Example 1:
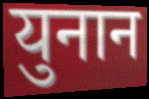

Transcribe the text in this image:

युनान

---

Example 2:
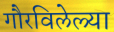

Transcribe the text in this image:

गौरविलेल्या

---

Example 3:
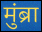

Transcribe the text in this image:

मुंब्रा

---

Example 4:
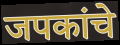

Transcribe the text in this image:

जपकांचे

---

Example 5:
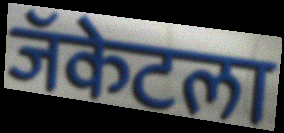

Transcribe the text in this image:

जॅकेटला